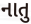
નાતુ